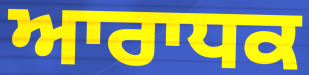
ਆਰਾਧਕ